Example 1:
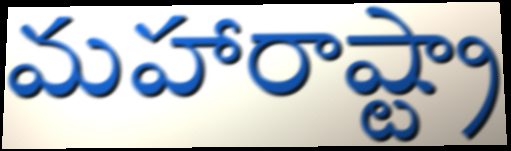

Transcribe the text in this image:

మహారాష్ట్రా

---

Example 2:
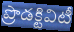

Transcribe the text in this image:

ప్రొడక్టివిటీ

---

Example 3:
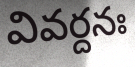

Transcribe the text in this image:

వివర్దనః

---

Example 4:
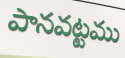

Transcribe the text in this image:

పానవట్టము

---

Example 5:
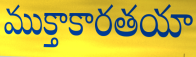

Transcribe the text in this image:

ముక్తాకారతయా